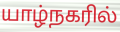
யாழ்நகரில்